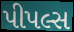
પીપલ્સ